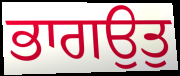
ਭਾਗਉਤੁ